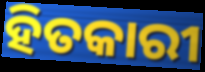
ହିତକାରୀ